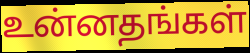
உன்னதங்கள்